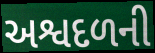
અશ્વદળની